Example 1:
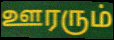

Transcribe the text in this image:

ஊரரும்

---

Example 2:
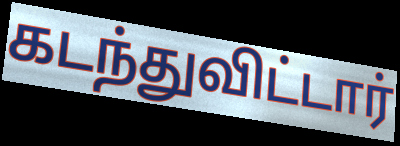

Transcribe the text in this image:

கடந்துவிட்டார்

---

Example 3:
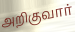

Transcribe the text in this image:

அறிகுவார்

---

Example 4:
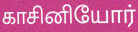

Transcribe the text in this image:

காசினியோர்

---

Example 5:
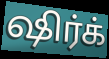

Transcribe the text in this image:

ஷிர்க்